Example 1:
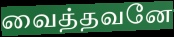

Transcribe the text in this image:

வைத்தவனே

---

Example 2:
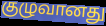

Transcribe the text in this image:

குழுவானது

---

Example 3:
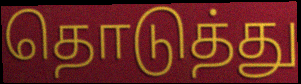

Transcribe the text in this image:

தொடுத்து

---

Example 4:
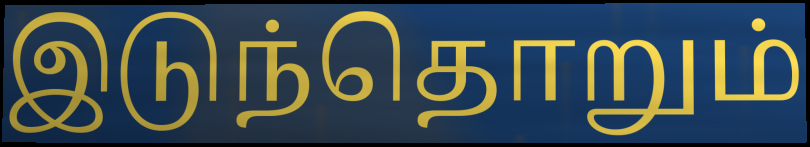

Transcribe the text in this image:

இடுந்தொறும்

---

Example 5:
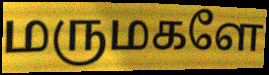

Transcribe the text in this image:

மருமகளே